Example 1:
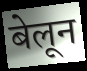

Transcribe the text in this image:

बेलून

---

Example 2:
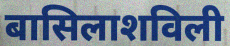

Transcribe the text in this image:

बासिलाशविली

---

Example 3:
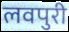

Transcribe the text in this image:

लवपुरी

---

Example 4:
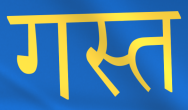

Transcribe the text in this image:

गस्त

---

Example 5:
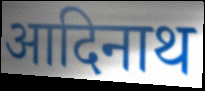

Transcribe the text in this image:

आदिनाथ